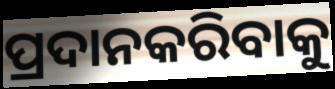
ପ୍ରଦାନକରିବାକୁ